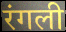
रंगली